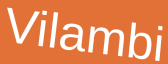
Vilambi